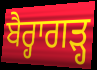
ਬੈਰ੍ਹਾਗੜ੍ਹ